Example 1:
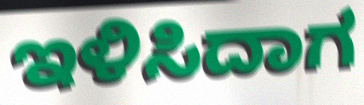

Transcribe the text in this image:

ಇಳಿಸಿದಾಗ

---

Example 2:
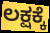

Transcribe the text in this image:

ಲಕ್ಷಕ್ಕೆ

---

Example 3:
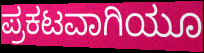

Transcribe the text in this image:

ಪ್ರಕಟವಾಗಿಯೂ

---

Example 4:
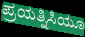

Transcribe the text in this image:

ಪ್ರಯತ್ನಿಸಿಯೂ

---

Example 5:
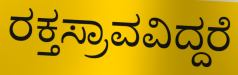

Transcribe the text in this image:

ರಕ್ತಸ್ರಾವವಿದ್ದರೆ